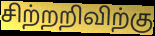
சிற்றறிவிற்கு